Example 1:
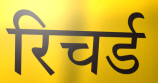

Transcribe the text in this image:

रिचर्ड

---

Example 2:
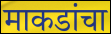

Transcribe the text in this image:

माकडांचा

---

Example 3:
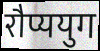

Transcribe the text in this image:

रौप्ययुग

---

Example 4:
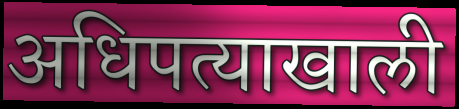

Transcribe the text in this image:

अधिपत्‍याखाली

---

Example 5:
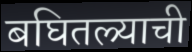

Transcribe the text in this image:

बघितल्याची